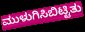
ಮುಳುಗಿಸಿಬಿಟ್ಟಿತು